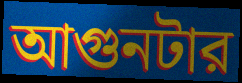
আগুনটার